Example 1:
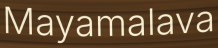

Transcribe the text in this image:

Mayamalava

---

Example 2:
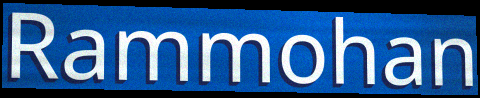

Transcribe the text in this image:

Rammohan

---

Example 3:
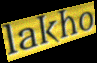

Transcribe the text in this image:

lakho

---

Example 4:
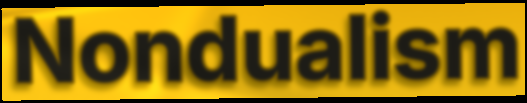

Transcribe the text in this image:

Nondualism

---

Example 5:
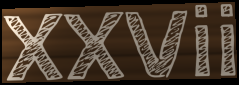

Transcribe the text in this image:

XXVii